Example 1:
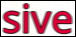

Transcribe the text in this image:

sive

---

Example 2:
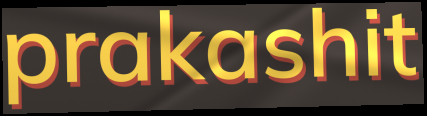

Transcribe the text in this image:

prakashit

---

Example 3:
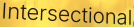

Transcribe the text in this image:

Intersectional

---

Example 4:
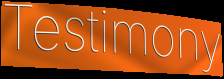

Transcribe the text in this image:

Testimony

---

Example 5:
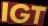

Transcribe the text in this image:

IGT